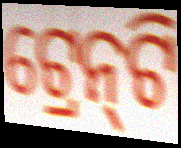
ଟ୍ରେନ୍‌ଟି